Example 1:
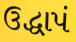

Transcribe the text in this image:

ઉદ્ધાપં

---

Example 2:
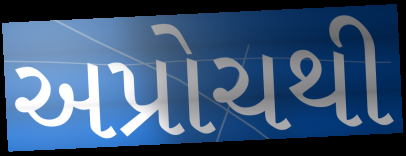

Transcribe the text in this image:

અપ્રોચથી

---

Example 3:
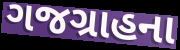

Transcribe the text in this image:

ગજગ્રાહના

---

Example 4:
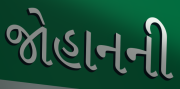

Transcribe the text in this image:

જોહાનની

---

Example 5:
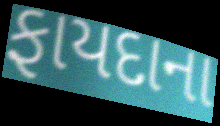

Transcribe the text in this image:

ફાયદાના